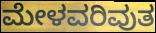
ಮೇಳವರಿವುತ